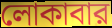
লোকাবার